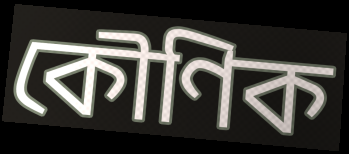
কৌণিক